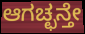
ಆಗಚ್ಛನ್ತೇ